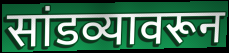
सांडव्यावरून